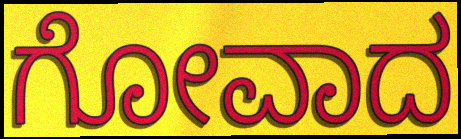
ಗೋವಾದ